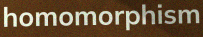
homomorphism